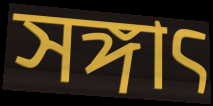
সঙ্গাৎ